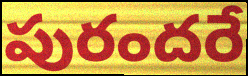
పురందరే